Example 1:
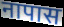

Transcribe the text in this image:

नापास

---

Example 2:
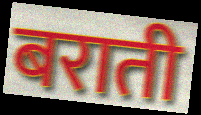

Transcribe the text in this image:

बराती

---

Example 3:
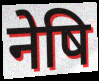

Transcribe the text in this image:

नेषि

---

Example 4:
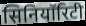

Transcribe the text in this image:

सिनियॉरिटी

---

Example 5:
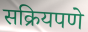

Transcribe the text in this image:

सक्रियपणे